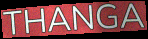
THANGA